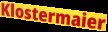
Klostermaier